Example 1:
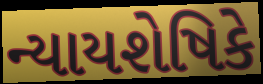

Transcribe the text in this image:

ન્યાયશેષિકે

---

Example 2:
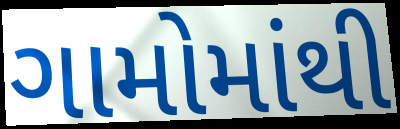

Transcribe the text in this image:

ગામોમાંથી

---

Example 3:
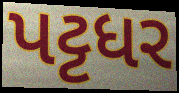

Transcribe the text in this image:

પટ્ટધર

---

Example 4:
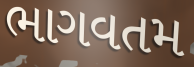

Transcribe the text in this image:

ભાગવતમ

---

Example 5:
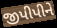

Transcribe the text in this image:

જીપીપીને